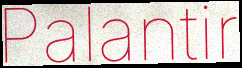
Palantir